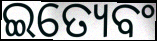
ଇତ୍ୟେବଂ